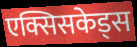
एक्सिसकेड्स